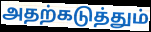
அதற்கடுத்தும்